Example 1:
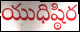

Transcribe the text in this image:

యుధిష్ఠిర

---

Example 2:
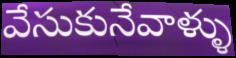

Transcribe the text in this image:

వేసుకునేవాళ్ళు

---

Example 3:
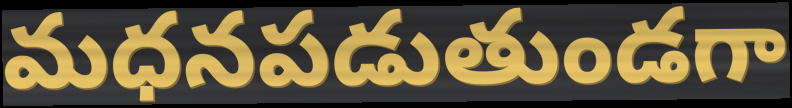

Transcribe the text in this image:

మధనపడుతుండగా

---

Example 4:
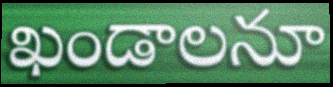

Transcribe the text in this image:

ఖండాలనూ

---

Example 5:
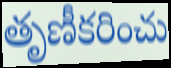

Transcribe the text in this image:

తృణీకరించు